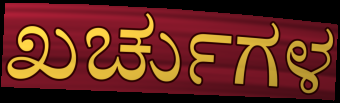
ಖರ್ಚುಗಳ